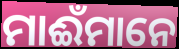
ମାଈଁମାନେ